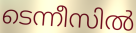
ടെന്നീസിൽ